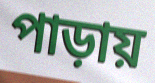
পাড়ায়